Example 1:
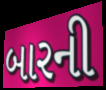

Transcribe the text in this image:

બારની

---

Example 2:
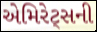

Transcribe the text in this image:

એમિરેટ્સની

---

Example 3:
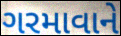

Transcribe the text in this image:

ગરમાવાને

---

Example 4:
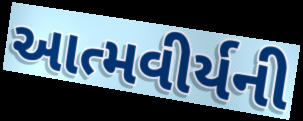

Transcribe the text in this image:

આત્મવીર્યની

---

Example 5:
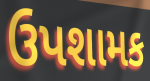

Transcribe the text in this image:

ઉપશામક